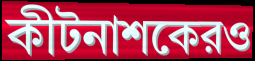
কীটনাশকেরও